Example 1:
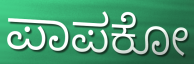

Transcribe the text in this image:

ಪಾಪಕೋ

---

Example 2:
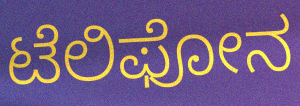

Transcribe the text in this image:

ಟೆಲಿಫೋನ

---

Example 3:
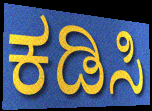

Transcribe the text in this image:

ಕಡಿಸಿ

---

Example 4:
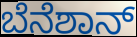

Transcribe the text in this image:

ಬೆನೆಶಾನ್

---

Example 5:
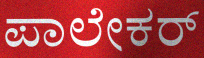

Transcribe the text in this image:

ಪಾಲೇಕರ್